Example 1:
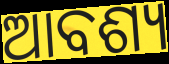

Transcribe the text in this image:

ଆବଶ୍ୟ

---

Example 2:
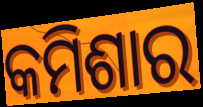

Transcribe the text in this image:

କମିଶାର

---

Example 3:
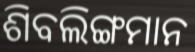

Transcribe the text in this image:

ଶିବଲିଙ୍ଗମାନ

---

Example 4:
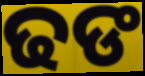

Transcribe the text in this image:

ଢଙ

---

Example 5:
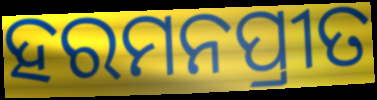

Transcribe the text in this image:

ହରମନପ୍ରୀତ